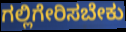
ಗಲ್ಲಿಗೇರಿಸಬೇಕು